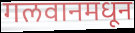
गलवानमधून